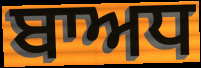
ਬਾਅਧ